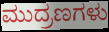
ಮುದ್ರಣಗಳು